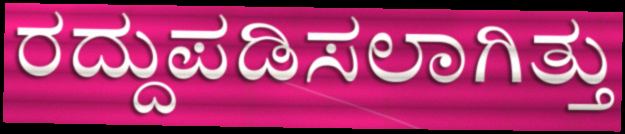
ರದ್ದುಪಡಿಸಲಾಗಿತ್ತು